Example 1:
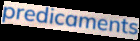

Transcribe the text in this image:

predicaments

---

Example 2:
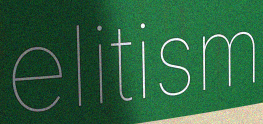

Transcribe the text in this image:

elitism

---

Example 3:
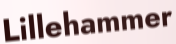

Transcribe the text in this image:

Lillehammer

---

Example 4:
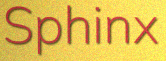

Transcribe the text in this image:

Sphinx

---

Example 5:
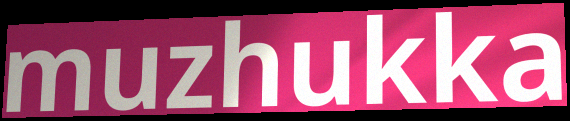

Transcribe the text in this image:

muzhukka